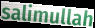
salimullah